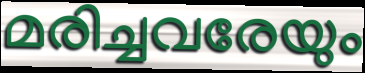
മരിച്ചവരേയും